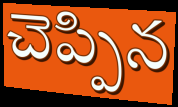
చెప్పిన